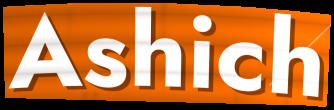
Ashich